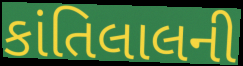
કાંતિલાલની